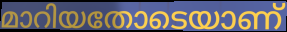
മാറിയതോടെയാണ്